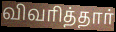
விவரித்தார்